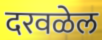
दरवळेल